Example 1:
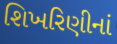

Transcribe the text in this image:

શિખરિણીનાં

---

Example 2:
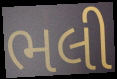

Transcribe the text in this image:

ભલી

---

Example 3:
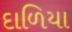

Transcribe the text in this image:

દાળિયા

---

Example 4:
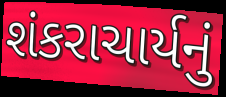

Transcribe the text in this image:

શંકરાચાર્યનું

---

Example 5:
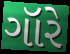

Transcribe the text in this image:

ગૉરે